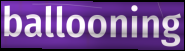
ballooning